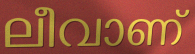
ലീവാണ്